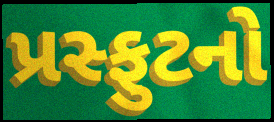
પ્રસ્ફુટનો